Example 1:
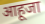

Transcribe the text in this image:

आहूजा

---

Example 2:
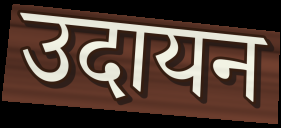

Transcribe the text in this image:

उदायन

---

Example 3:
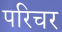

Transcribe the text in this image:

परिचर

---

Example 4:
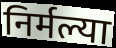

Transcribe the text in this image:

निर्मल्या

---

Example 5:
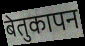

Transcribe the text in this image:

बेतुकापन